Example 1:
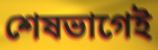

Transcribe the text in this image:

শেষভাগেই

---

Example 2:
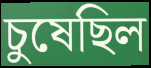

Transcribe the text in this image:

চুষেছিল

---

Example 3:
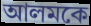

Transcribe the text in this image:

আলমকে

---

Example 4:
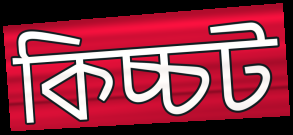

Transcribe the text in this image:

কিচ্চট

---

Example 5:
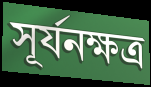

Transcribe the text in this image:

সূর্যনক্ষত্র